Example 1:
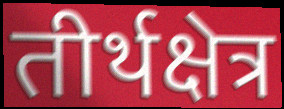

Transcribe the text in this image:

तीर्थक्षेत्र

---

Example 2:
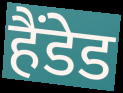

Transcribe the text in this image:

हैंडेड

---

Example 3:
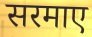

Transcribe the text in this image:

सरमाए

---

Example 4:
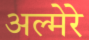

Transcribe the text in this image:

अल्मेरे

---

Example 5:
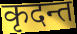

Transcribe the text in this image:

कृदन्त